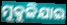
ମୁକୁଳିଯାଇ